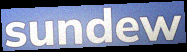
sundew